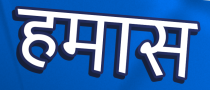
हमास